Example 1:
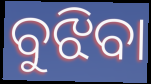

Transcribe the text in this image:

ବୁଝିବା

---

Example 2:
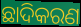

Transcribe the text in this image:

ଛାଦିକରଣ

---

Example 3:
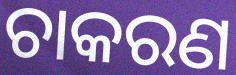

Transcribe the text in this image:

ଚାକରଣ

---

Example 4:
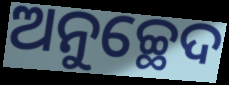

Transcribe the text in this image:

ଅନୁଚ୍ଛେଦ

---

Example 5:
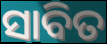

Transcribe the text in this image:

ସାବିତ